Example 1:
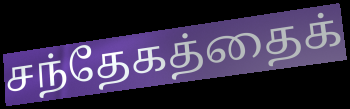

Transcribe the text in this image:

சந்தேகத்தைக்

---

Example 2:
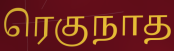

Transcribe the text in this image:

ரெகுநாத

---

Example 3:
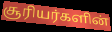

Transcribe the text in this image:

சூரியர்களின்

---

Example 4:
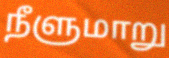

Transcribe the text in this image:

நீளுமாறு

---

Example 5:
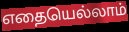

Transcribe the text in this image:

எதையெல்லாம்